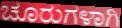
ಚೂರುಗಳಾಗಿ